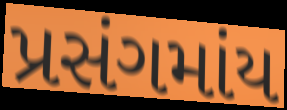
પ્રસંગમાંય